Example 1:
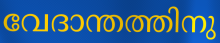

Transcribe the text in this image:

വേദാന്തത്തിനു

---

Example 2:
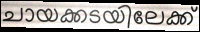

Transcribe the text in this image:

ചായക്കടയിലേക്ക്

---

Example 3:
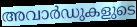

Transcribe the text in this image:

അവാർഡുകളുടെ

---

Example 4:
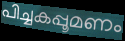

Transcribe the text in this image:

പിച്ചകപ്പൂമണം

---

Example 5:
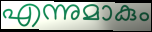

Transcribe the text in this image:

എന്നുമാകും